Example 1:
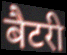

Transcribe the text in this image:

बैटरी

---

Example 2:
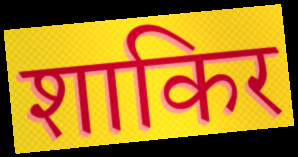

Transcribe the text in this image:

शाकिर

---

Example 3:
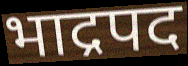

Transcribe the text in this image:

भाद्रपद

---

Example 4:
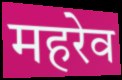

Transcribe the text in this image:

महरेव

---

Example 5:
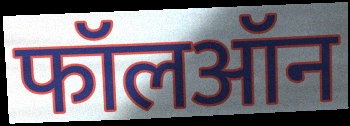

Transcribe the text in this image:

फॉलऑन